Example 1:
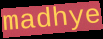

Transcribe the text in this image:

madhye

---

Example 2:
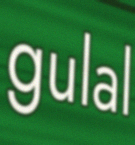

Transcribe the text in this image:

gulal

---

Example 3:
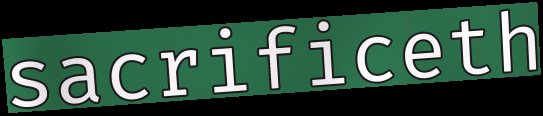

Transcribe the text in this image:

sacrificeth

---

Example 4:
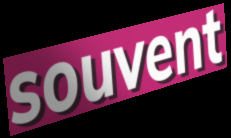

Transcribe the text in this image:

souvent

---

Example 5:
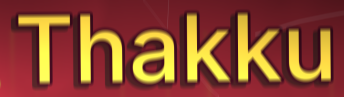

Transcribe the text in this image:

Thakku